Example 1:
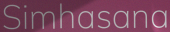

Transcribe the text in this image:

Simhasana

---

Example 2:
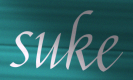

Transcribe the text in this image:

suke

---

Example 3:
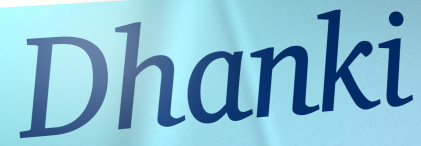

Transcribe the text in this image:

Dhanki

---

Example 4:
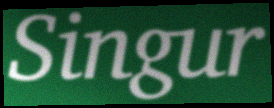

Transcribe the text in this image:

Singur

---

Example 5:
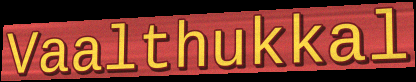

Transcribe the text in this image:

Vaalthukkal